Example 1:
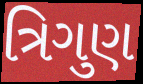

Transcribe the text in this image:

ત્રિગુણ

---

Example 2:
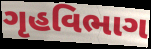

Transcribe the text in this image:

ગૃહવિભાગ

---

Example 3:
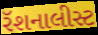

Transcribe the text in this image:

રૅશનાલીસ્ટ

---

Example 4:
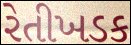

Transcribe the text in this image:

રેતીખડક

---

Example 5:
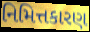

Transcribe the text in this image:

નિમિત્તકારણ